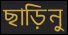
ছাড়িনু